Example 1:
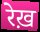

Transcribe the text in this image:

रेख़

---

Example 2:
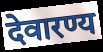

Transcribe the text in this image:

देवारण्य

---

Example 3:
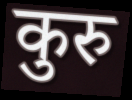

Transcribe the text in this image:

कुरु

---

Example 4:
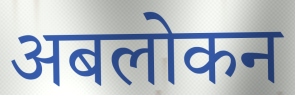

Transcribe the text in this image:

अबलोकन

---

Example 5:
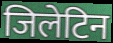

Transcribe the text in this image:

जिलेटिन